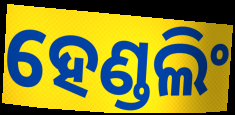
ହେଣ୍ଡଲିଂ